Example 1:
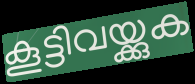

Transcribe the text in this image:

കൂട്ടിവയ്ക്കുക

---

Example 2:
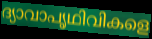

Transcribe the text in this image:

ദ്യാവാപൃഥിവികളെ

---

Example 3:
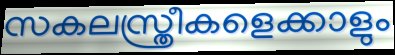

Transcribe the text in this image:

സകലസ്ത്രീകളെക്കാളും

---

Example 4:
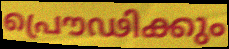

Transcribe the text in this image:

പ്രൌഢിക്കും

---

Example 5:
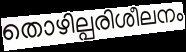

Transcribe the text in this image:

തൊഴില്പരിശീലനം